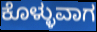
ಕೊಳ್ಳುವಾಗ